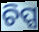
ଚିପ୍ସ